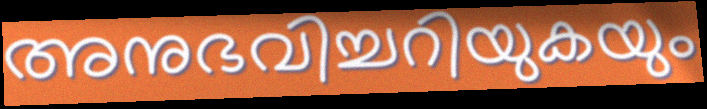
അനുഭവിച്ചറിയുകയും